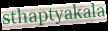
sthaptyakala